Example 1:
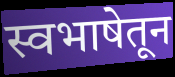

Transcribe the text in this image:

स्वभाषेतून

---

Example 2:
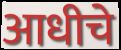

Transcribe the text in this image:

आधीचे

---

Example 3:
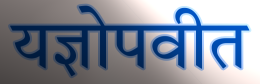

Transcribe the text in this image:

यज्ञोपवीत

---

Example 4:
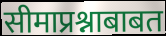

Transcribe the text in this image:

सीमाप्रश्नाबाबत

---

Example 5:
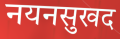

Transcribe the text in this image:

नयनसुखद